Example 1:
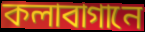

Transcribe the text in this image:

কলাবাগানে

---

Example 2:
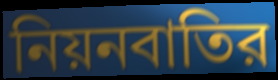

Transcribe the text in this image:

নিয়নবাতির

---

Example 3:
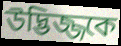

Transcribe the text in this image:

উদ্ভিজ্জকে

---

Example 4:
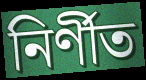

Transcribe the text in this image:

নির্ণীত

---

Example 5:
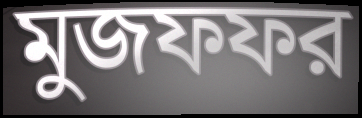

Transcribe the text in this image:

মুজফফর